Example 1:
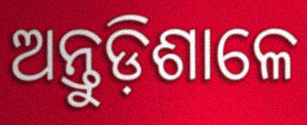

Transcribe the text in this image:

ଅନ୍ତୁଡ଼ିଶାଳେ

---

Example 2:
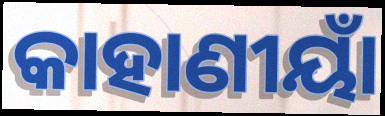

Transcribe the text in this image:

କାହାଣୀୟାଁ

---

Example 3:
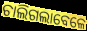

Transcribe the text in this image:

ଚାଲିଗଲାବେଳେ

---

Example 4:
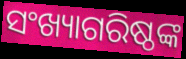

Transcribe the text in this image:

ସଂଖ୍ୟାଗରିଷ୍ଠଙ୍କ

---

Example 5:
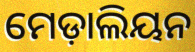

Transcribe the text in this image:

ମେଡ଼ାଲିୟନ